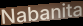
Nabanita